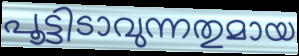
പൂട്ടിടാവുന്നതുമായ